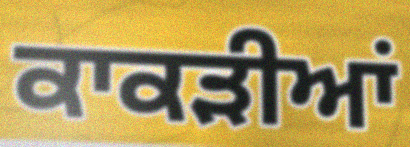
ਕਾਕੜੀਆਂ